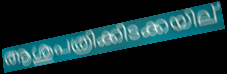
ആശുപത്രിക്കിടക്കയില്